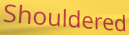
Shouldered